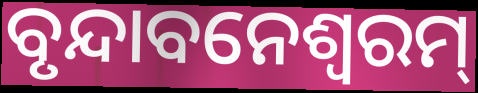
ବୃନ୍ଦାବନେଶ୍ୱରମ୍